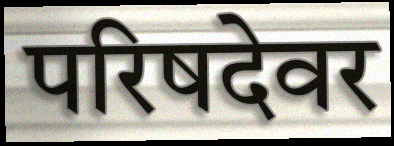
परिषदेवर